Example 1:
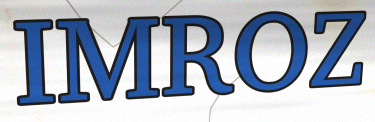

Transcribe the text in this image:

IMROZ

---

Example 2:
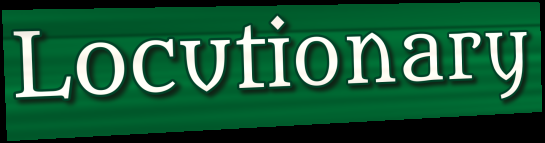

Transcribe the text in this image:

Locutionary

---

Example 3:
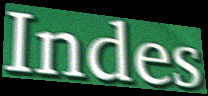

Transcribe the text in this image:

Indes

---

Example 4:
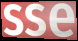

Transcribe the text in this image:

sse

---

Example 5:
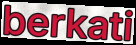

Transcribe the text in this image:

berkati